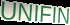
UNIFIN